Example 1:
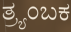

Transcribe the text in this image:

ತ್ರ್ಯಂಬಕ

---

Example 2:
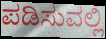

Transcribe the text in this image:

ಪಡಿಸುವಲ್ಲಿ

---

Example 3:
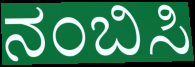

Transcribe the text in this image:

ನಂಬಿಸಿ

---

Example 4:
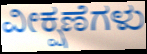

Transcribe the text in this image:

ವೀಕ್ಷಣೆಗಳು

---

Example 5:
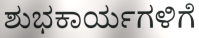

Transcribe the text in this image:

ಶುಭಕಾರ್ಯಗಳಿಗೆ